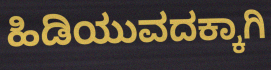
ಹಿಡಿಯುವದಕ್ಕಾಗಿ